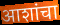
आशांचा